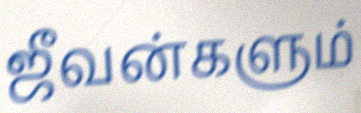
ஜீவன்களும்